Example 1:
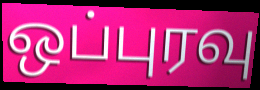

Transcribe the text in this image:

ஒப்புரவு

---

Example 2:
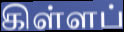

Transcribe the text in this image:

கிள்ளப்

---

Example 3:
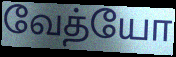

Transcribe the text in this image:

வேத்யோ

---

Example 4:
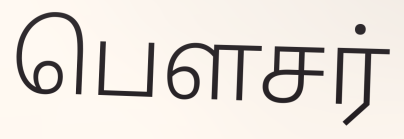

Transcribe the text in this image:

பௌசர்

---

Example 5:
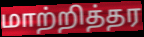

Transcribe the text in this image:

மாற்றித்தர